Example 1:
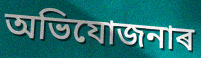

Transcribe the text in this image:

অভিযোজনাৰ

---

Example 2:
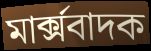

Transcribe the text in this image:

মাৰ্ক্সবাদক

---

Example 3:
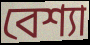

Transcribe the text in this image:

বেশ্যা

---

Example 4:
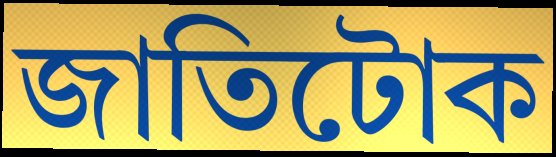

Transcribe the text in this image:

জাতিটোক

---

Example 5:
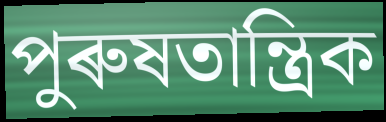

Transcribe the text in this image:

পুৰুষতান্ত্ৰিক